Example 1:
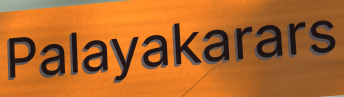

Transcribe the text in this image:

Palayakarars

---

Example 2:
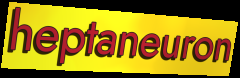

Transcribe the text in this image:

heptaneuron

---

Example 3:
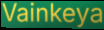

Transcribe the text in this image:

Vainkeya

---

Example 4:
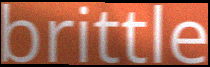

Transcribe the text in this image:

brittle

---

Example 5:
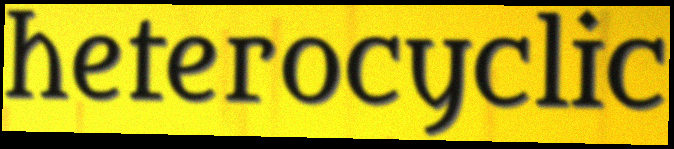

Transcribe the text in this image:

heterocyclic